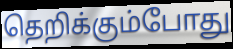
தெறிக்கும்போது